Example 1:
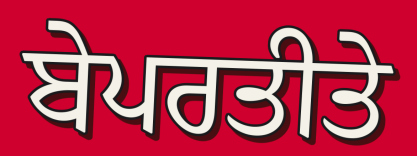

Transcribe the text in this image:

ਬੇਪਰਤੀਤੇ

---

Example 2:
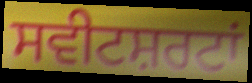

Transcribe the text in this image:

ਸਵੀਟਸ਼ਰਟਾਂ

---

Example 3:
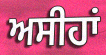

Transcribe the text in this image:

ਅਸੀਹਾਂ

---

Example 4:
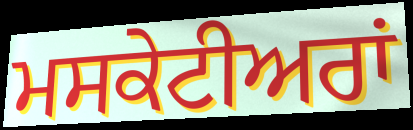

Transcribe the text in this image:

ਮਸਕੇਟੀਅਰਾਂ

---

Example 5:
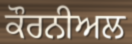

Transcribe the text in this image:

ਕੌਰਨੀਅਲ